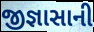
જીજ્ઞાસાની